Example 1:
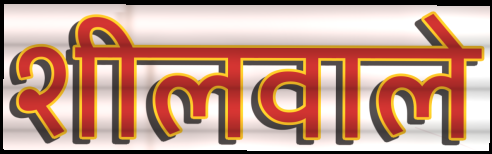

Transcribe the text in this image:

शीलवाले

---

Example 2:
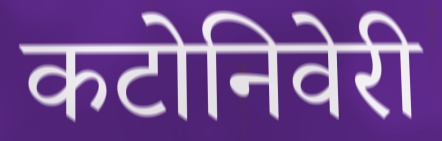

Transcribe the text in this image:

कटोनिवेरी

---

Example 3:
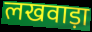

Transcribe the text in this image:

लखवाड़ा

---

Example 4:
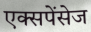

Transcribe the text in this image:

एक्सपेंसेज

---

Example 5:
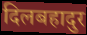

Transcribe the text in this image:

दिलबहादुर